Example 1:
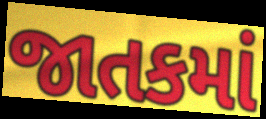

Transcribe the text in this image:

જાતકમાં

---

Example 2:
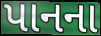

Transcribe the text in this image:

પાનના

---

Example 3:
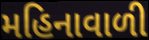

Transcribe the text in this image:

મહિનાવાળી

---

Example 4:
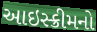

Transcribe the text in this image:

આઇસ્ક્રીમનો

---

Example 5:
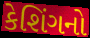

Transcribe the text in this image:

કેશિંગનો